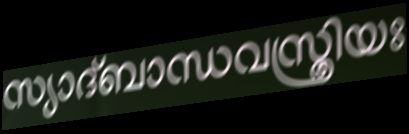
സ്യാദ്ബാന്ധവസ്ത്രിയഃ